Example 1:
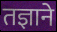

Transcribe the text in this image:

तज्ञाने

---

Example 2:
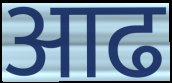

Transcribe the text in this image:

आढ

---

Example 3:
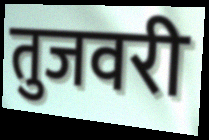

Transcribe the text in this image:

तुजवरी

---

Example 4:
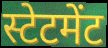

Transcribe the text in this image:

स्टेटमेंट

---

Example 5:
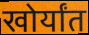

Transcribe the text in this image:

खोर्यांत